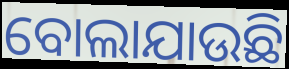
ବୋଲାଯାଉଛି